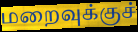
மறைவுக்குச்